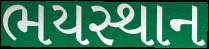
ભયસ્થાન